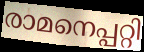
രാമനെപ്പറ്റി